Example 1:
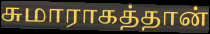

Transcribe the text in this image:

சுமாராகத்தான்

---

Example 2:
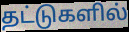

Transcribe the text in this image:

தட்டுகளில்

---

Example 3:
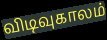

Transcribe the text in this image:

விடிவுகாலம்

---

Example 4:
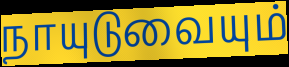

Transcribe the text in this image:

நாயுடுவையும்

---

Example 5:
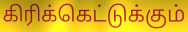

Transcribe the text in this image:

கிரிக்கெட்டுக்கும்